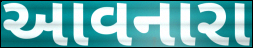
આવનારા